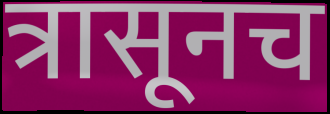
त्रासूनच